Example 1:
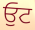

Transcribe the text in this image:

ਓੁਟ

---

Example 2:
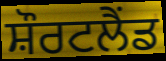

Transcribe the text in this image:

ਸ਼ੌਰਟਲੈਂਡ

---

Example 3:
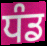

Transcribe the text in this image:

ਧੰਡ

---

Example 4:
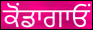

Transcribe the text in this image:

ਕੋਂਡਾਗਾਓਂ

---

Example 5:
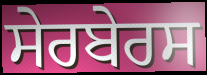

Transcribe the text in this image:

ਸੇਰਬੇਰਸ